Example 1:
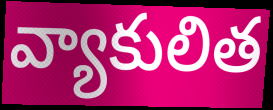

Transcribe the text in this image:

వ్యాకులిత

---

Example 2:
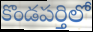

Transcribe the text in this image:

కొండపర్తిలో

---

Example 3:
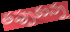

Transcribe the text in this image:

తప్పుకున్న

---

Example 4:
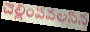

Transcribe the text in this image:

చెల్లింపవలసిన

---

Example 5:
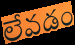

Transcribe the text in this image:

లేవడం